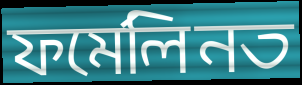
ফৰ্মেলিনত